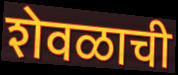
शेवळाची